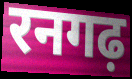
रनगढ़